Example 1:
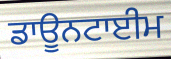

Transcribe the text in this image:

ਡਾਊਨਟਾਈਮ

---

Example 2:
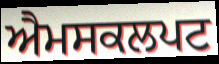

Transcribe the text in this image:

ਐਮਸਕਲਪਟ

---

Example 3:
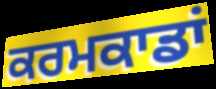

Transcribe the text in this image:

ਕਰਮਕਾਡਾਂ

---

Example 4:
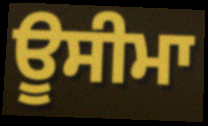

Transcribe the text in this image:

ਊਸੀਮਾ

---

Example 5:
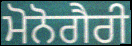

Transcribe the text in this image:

ਮੋਨੋਗੈਰੀ